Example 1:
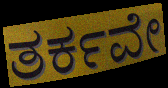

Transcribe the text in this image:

ತರ್ಕವೇ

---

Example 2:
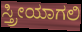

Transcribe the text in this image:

ಸ್ತ್ರೀಯಾಗಲಿ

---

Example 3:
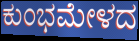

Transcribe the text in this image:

ಕುಂಭಮೇಳದ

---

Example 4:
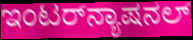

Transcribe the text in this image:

ಇಂಟರ್‌ನ್ಯಾಷನಲ್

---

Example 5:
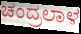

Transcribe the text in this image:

ಚಂದ್ರಲಾಳ